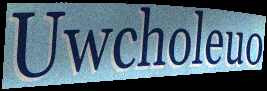
Uwcholeuo